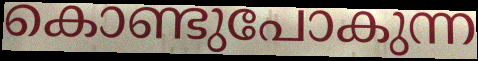
കൊണ്ടുപോകുന്ന